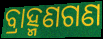
ବ୍ରାହ୍ମଣଗଣ